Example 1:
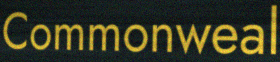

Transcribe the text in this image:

Commonweal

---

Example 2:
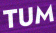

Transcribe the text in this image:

TUM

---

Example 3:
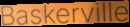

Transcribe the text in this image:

Baskerville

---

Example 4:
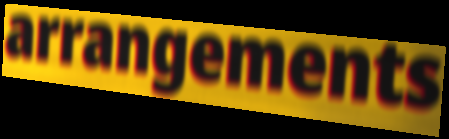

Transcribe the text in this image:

arrangements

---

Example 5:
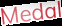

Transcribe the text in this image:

Medal